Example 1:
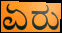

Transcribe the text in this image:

ಏರು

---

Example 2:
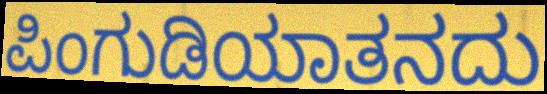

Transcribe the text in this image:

ಪಿಂಗುಡಿಯಾತನದು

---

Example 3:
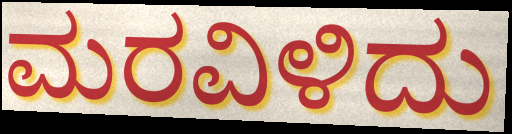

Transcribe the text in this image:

ಮರವಿಳಿದು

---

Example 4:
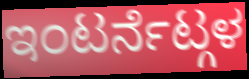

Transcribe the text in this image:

ಇಂಟರ್ನೆಟ್ಗಳ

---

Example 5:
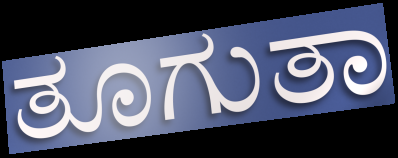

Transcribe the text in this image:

ತೂಗುತಾ